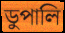
ডুপালি